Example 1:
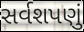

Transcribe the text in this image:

સર્વશપણું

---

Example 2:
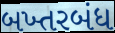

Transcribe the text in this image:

બખ્તરબંધ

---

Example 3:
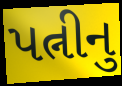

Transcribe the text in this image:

પત્નીનુ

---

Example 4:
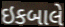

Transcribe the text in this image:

ઇકબાલે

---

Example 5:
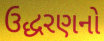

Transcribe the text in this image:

ઉદ્ધરણનો